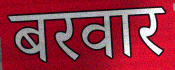
बरवार